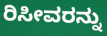
ರಿಸೀವರನ್ನು